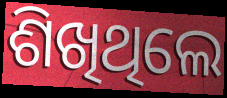
ଶିଖିଥିଲେ